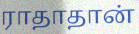
ராதாதான்